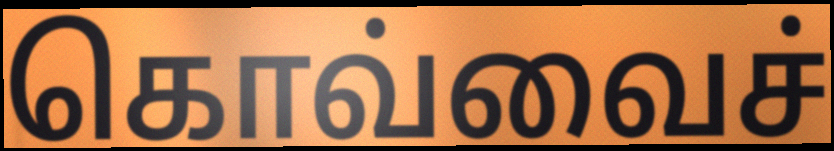
கொவ்வைச்